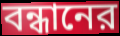
বন্ধানের